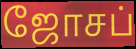
ஜோசப்